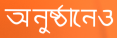
অনুষ্ঠানেও